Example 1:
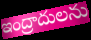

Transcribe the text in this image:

ఇంద్రాదులను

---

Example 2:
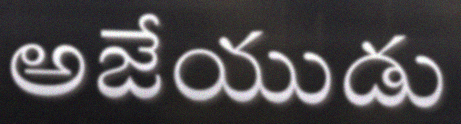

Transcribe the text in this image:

అజేయుడు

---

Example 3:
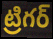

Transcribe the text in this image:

ట్రిగర్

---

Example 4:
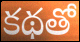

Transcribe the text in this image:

కథతో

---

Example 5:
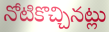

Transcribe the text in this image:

నోటికొచ్చినట్లు